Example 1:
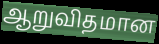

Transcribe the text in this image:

ஆறுவிதமான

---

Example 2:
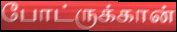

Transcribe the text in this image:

போட்ருக்கான்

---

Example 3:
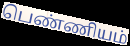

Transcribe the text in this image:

பெண்ணியம்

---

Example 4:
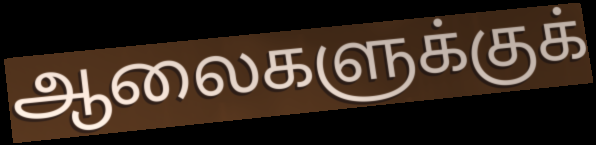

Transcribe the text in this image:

ஆலைகளுக்குக்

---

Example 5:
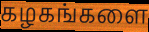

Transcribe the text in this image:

கழகங்களை